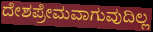
ದೇಶಪ್ರೇಮವಾಗುವುದಿಲ್ಲ